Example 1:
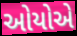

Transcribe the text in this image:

ઓયોએ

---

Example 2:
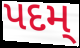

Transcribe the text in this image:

પદમ્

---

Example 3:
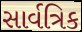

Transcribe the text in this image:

સાર્વત્રિક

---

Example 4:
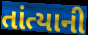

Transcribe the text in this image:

તાંત્યાની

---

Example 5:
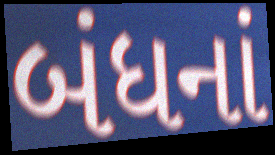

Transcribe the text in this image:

બંધનાં